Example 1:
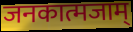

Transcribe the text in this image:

जनकात्मजाम्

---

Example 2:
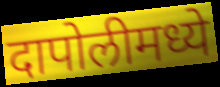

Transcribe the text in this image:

दापोलीमध्ये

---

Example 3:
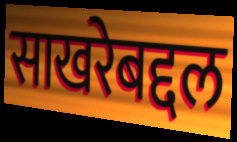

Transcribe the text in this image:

साखरेबद्दल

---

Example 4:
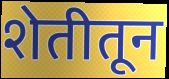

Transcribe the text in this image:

शेतीतून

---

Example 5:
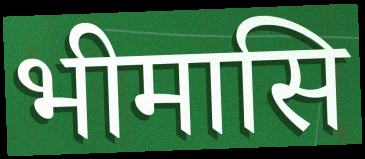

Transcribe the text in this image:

भीमासि